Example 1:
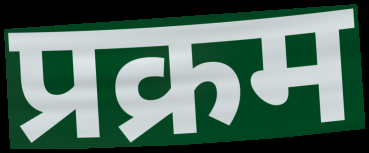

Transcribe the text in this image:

प्रक्रम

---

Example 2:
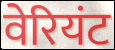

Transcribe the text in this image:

वेरियंट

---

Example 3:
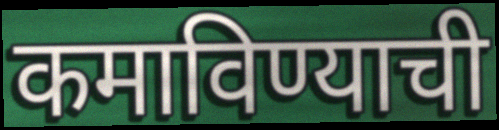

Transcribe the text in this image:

कमाविण्याची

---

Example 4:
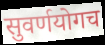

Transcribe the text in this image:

सुवर्णयोगच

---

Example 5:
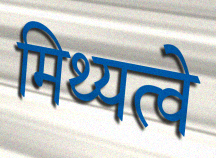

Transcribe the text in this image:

मिथ्यत्वे